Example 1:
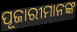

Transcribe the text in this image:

ପୂଜାରୀମାନଙ୍କ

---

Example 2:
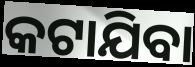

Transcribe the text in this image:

କଟାଯିବା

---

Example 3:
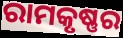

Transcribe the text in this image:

ରାମକୃଷ୍ଣର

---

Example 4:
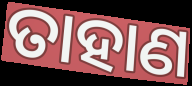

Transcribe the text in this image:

ତାହାଣ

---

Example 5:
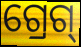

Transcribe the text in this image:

ଗ୍ରେଗ୍